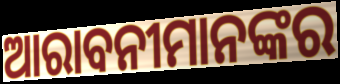
ଆରାବନୀମାନଙ୍କର